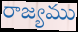
రాజ్యము